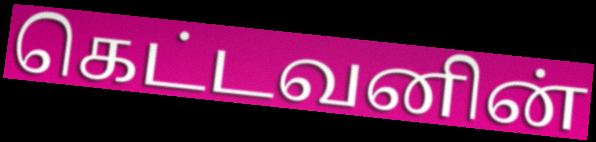
கெட்டவனின்